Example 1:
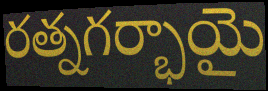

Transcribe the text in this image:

రత్నగర్భాయై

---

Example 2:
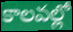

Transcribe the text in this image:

కాలవల్లో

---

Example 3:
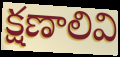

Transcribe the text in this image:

క్షణాలివి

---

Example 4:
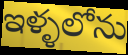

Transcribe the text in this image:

ఇళ్ళలోను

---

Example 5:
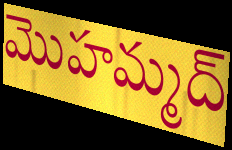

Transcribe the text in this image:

మొహమ్మద్